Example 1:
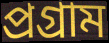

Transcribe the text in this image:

প্ৰগ্ৰাম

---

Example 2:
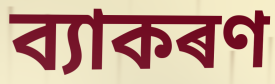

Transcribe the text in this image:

ব্যাকৰণ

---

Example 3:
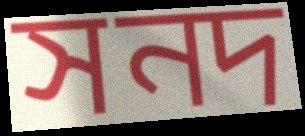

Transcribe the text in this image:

সনদ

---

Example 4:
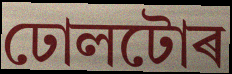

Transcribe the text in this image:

ঢোলটোৰ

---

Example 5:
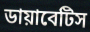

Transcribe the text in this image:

ডায়াবেটিস